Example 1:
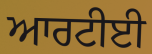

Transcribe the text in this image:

ਆਰਟੀਈ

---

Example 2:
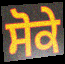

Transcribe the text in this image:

ਸੋਕੇ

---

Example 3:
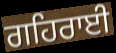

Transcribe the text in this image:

ਗਹਿਰਾਈ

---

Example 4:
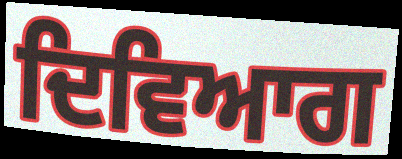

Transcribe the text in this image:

ਦਿਵਿਆਗ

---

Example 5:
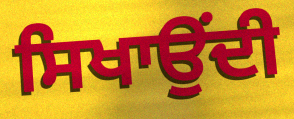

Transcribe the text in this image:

ਸਿਖਾਉਂਦੀ